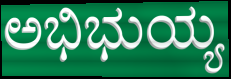
ಅಭಿಭುಯ್ಯ